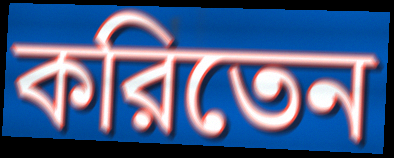
করিতেন